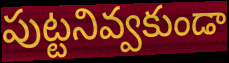
పుట్టనివ్వకుండా